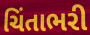
ચિંતાભરી